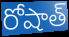
రోషాత్